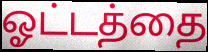
ஓட்டத்தை